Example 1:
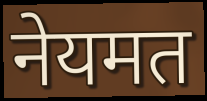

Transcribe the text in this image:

नेयमत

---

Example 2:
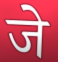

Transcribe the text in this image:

जे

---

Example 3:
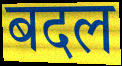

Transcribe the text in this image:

बदल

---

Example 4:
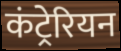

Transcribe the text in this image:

कंट्रेरियन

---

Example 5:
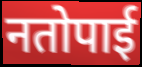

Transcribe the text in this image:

नतोपाई